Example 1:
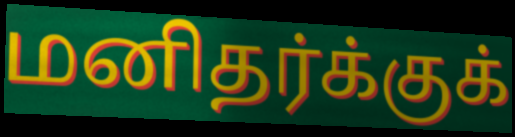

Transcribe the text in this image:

மனிதர்க்குக்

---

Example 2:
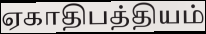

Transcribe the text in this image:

ஏகாதிபத்தியம்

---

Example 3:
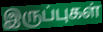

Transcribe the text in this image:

இருப்புகள்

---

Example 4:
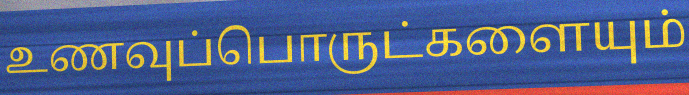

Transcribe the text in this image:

உணவுப்பொருட்களையும்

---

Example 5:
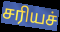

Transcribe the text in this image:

சரியச்